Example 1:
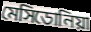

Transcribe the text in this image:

মেসিডোনিয়া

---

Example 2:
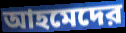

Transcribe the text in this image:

আহমেদের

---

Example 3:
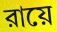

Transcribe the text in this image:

রায়ে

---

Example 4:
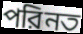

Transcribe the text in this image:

পরিনত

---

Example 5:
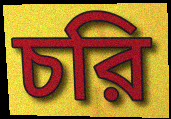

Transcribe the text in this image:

চরি